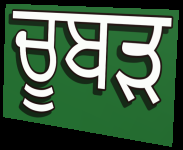
ਚੂਬੜ